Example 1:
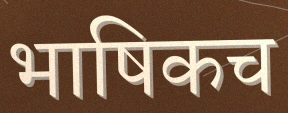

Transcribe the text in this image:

भाषिकच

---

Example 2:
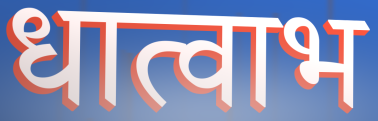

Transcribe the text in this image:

धात्वाभ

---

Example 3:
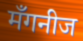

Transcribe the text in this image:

मँगनीज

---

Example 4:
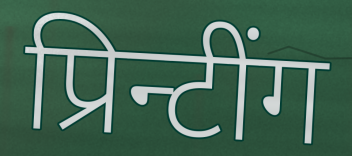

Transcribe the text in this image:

प्रिन्टींग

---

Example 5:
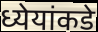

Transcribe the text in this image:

ध्येयांकडे